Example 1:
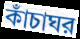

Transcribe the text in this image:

কাঁচাঘর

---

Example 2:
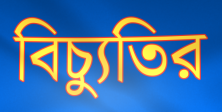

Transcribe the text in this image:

বিচ্যুতির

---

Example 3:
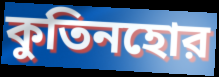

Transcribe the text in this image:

কুতিনহোর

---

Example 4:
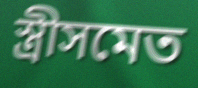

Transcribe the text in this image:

স্ত্রীসমেত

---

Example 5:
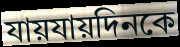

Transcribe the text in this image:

যায়যায়দিনকে